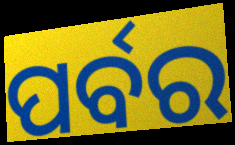
ପର୍ବର